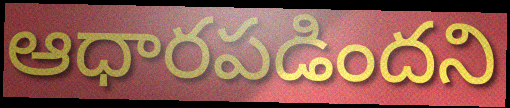
ఆధారపడిందని